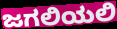
ಜಗಲಿಯಲಿ